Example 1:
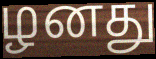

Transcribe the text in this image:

ழனது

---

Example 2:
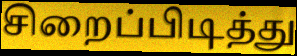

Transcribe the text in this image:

சிறைப்பிடித்து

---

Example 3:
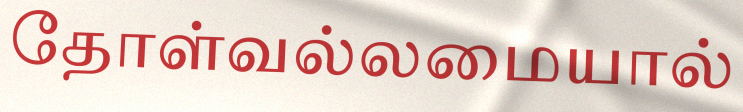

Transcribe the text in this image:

தோள்வல்லமையால்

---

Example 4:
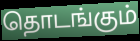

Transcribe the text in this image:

தொடங்கும்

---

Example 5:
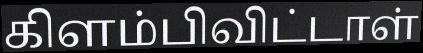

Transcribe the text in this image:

கிளம்பிவிட்டாள்